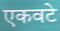
एकवटे